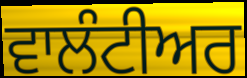
ਵਾਲੰਟੀਅਰ